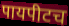
पायपीटच